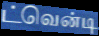
ட்வென்டி